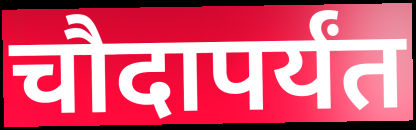
चौदापर्यंत